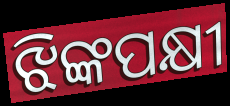
ଝିଙ୍କପକ୍ଷୀ